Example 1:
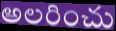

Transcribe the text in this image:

అలరించు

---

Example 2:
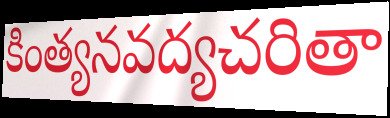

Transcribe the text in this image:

కింత్యనవద్యచరితా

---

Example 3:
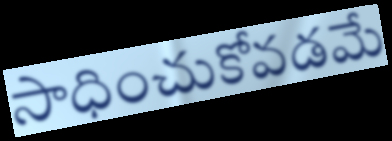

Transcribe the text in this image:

సాధించుకోవడమే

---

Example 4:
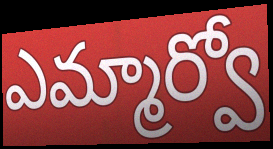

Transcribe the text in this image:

ఎమ్మార్వో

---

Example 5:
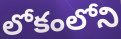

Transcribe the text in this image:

లోకంలోని